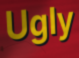
Ugly